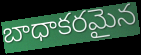
బాధాకరమైన